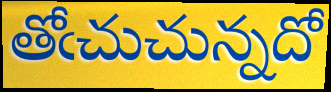
తోఁచుచున్నదో